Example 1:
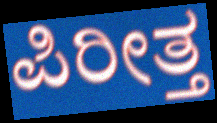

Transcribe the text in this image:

ಪಿರೀತ್ತ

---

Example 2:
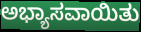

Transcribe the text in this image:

ಅಭ್ಯಾಸವಾಯಿತು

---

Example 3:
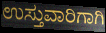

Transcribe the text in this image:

ಉಸ್ತುವಾರಿಗಾಗಿ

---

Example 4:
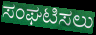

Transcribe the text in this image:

ಸಂಘಟಿಸಲು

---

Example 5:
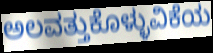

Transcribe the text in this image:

ಅಲವತ್ತುಕೊಳ್ಳುವಿಕೆಯ